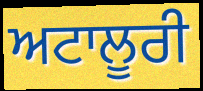
ਅਟਾਲੂਰੀ